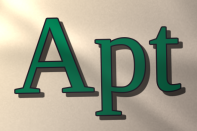
Apt